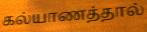
கல்யாணத்தால்